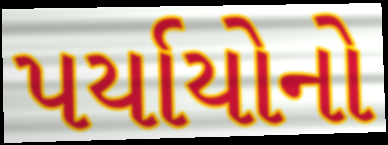
પર્યાયોનો